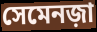
সেমেনজ়া